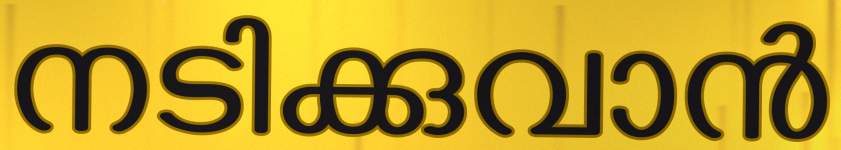
നടിക്കുവാൻ